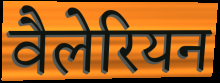
वैलेरियन